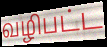
வழிபட்ட